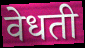
वेधती